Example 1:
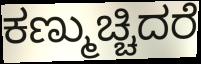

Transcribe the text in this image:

ಕಣ್ಮುಚ್ಚಿದರೆ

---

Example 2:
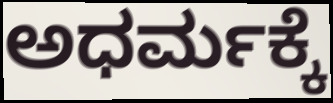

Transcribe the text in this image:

ಅಧರ್ಮಕ್ಕೆ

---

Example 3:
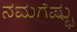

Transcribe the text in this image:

ನಮಗೆಷ್ಟು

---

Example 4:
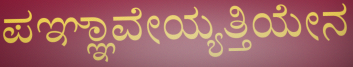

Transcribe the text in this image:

ಪಞ್ಞಾವೇಯ್ಯತ್ತಿಯೇನ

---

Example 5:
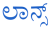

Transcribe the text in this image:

ಲಾನ್ಸ್